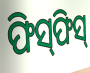
ଫିସ୍‍ଫିସ୍